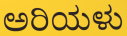
ಅರಿಯಳು